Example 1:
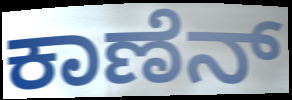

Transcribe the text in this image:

ಕಾಣೆನ್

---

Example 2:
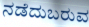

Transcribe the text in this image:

ನಡೆದುಬರುವ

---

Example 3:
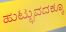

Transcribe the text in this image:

ಹುಟ್ಟುವದಕ್ಕೂ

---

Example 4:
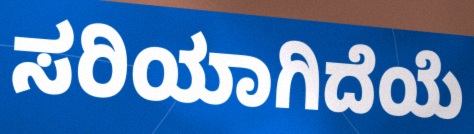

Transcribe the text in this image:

ಸರಿಯಾಗಿದೆಯೆ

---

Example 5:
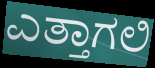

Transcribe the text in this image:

ಎತ್ತಾಗಲಿ